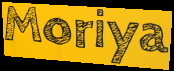
Moriya